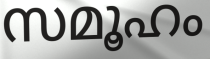
സമൂഹം